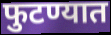
फुटण्यात